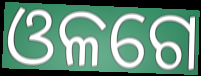
ଓଳଗେ